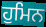
ਹੁਮਿਨ